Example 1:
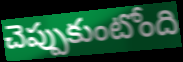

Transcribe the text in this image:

చెప్పుకుంటోంది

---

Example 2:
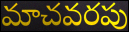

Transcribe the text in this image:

మాచవరపు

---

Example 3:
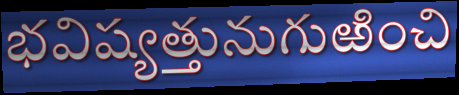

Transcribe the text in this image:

భవిష్యత్తునుగుఱించి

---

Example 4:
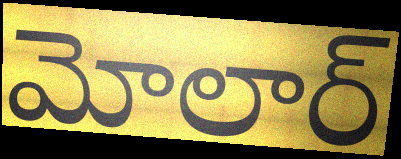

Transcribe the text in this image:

మోలార్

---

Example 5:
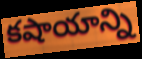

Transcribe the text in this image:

కషాయాన్ని